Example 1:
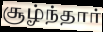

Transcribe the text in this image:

சூழ்ந்தார்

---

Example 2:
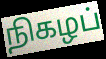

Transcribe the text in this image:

நிகழப்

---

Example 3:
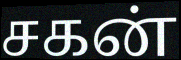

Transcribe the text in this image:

சகன்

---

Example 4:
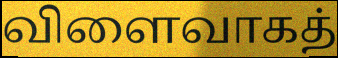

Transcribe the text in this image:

விளைவாகத்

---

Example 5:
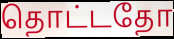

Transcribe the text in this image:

தொட்டதோ